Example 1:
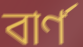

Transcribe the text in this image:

বাৰ্ণ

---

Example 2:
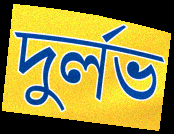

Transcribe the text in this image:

দুৰ্লভ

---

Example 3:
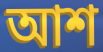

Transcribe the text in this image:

আশ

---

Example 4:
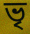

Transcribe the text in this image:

ভৃ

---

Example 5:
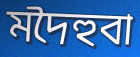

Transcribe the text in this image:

মদৈহুবা